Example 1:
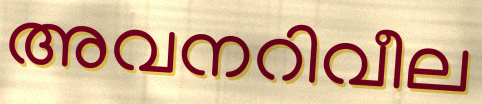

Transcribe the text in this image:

അവനറിവീല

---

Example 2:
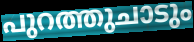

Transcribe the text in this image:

പുറത്തുചാടും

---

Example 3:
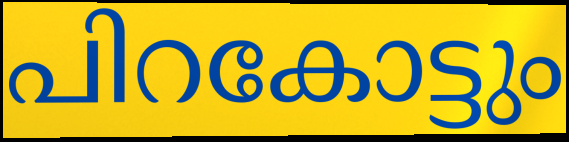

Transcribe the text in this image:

പിറകോട്ടും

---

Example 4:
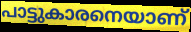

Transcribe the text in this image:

പാട്ടുകാരനെയാണ്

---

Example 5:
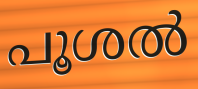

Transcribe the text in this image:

പൂശൽ